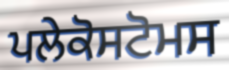
ਪਲੇਕੋਸਟੋਮਸ